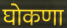
घोकणा